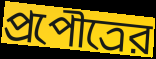
প্রপৌত্রের